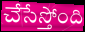
చేసేస్తోంది